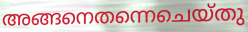
അങ്ങനെതന്നെചെയ്തു